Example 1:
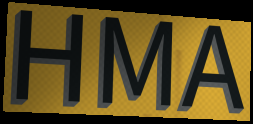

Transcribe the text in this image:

HMA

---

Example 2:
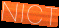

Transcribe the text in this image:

NICT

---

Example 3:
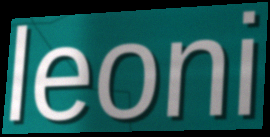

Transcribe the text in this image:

leoni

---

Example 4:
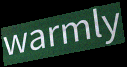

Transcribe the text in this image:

warmly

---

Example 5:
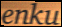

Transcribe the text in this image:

enku